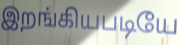
இறங்கியபடியே